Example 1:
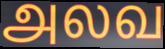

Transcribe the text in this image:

அலவ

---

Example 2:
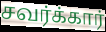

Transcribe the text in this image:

சவர்க்கார்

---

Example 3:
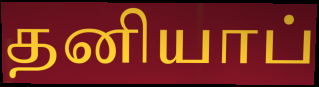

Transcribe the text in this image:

தனியாப்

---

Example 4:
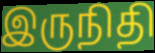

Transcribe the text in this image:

இருநிதி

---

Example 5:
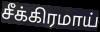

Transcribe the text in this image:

சீக்கிரமாய்